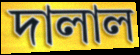
দালাল